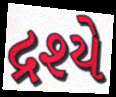
દ્રશ્યે